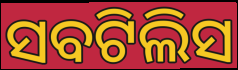
ସବଟିଲିସ